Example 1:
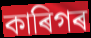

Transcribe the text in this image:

কাৰিগৰ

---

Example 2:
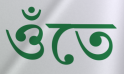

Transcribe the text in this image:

ওঁতে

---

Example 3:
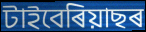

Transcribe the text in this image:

টাইবেৰিয়াছৰ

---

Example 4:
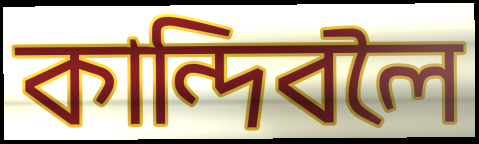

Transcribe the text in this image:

কান্দিবলৈ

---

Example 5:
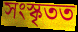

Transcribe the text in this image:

সংস্কৃতত